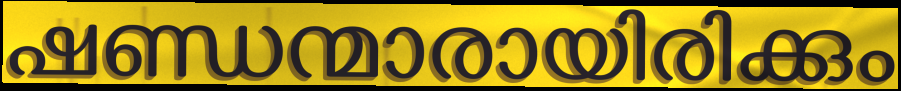
ഷണ്ഡന്മാരായിരിക്കും